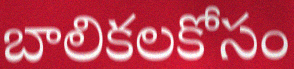
బాలికలకోసం